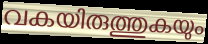
വകയിരുത്തുകയും